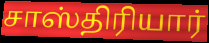
சாஸ்திரியார்